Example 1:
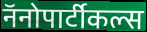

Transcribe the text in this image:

नॅनोपार्टीकल्स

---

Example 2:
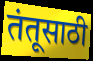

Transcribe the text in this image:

तंतूसाठी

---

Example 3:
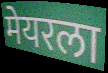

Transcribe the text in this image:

मेयरला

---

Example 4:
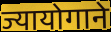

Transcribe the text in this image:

ज्यायोगाने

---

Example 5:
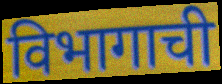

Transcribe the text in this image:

विभागाची